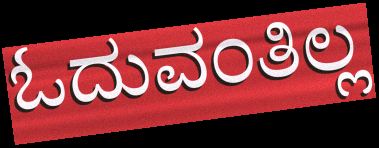
ಓದುವಂತಿಲ್ಲ